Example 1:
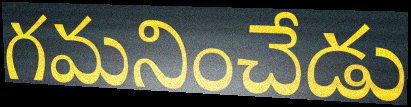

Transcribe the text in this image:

గమనించేడు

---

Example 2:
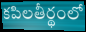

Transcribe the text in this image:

కపిలతీర్థంలో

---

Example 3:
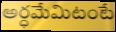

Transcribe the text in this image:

అర్ధమేమిటంటే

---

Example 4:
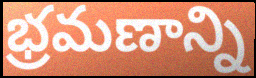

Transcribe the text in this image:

భ్రమణాన్ని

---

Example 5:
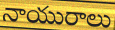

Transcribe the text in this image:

నాయురాలు